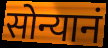
सोन्यानं